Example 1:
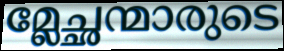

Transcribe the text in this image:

മ്ലേച്ഛന്മാരുടെ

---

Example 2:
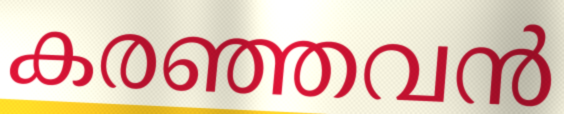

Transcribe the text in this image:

കരഞ്ഞവൻ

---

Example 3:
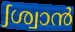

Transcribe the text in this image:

ഽശ്വാൻ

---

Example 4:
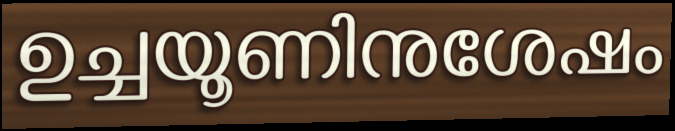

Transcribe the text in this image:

ഉച്ചയൂണിനുശേഷം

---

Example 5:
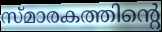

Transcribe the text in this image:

സ്മാരകത്തിന്റെ